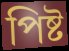
পিষ্ট